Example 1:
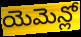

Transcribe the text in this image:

యెమెన్లో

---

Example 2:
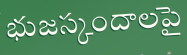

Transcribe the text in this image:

భుజస్కందాలపై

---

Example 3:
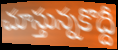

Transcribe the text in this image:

చూస్తున్నకొద్దీ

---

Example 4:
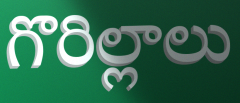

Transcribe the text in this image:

గొరిల్లాలు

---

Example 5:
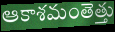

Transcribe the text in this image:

ఆకాశమంతెత్తు